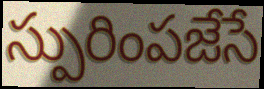
స్పురింపజేసే